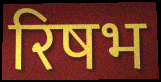
रिषभ